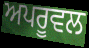
ਅਪਰੂਵਲ